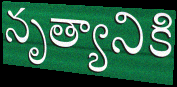
నృత్యానికి